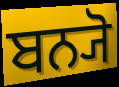
ਬਨ੍ਯੋ